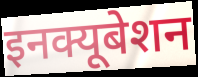
इनक्यूबेशन